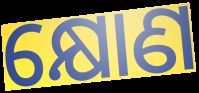
କ୍ଷୋଣ